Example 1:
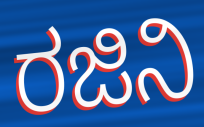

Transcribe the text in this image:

ರಜಿನಿ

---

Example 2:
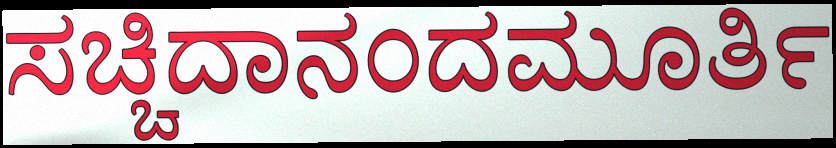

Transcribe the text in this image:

ಸಚ್ಚಿದಾನಂದಮೂರ್ತಿ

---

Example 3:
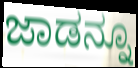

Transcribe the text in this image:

ಜಾಡನ್ನೂ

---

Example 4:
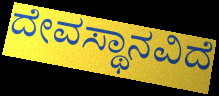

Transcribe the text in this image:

ದೇವಸ್ಥಾನವಿದೆ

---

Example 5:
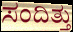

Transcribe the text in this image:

ಸಂದಿತ್ತು